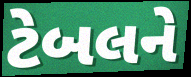
ટેબલને